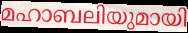
മഹാബലിയുമായി